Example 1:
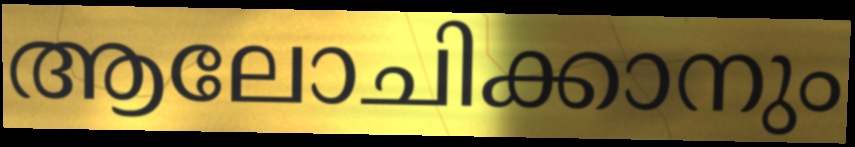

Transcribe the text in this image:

ആലോചിക്കാനും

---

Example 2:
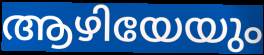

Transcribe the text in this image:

ആഴിയേയും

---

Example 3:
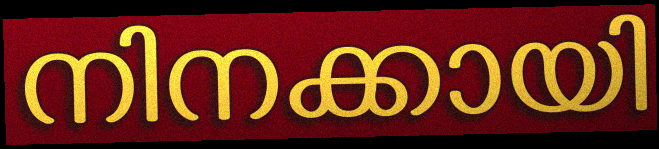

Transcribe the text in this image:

നിനക്കായി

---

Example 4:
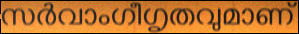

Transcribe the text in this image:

സർവാംഗീഗൃതവുമാണ്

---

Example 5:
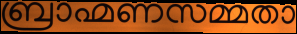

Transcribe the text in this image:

ബ്രാഹ്മണസമ്മതാ